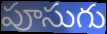
పూసుగు